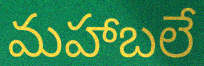
మహాబలే